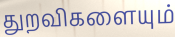
துறவிகளையும்